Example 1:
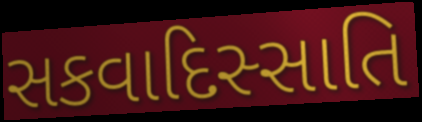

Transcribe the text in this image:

સકવાદિસ્સાતિ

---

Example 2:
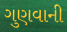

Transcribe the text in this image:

ગુણવાની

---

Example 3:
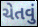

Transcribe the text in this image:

ચેતવું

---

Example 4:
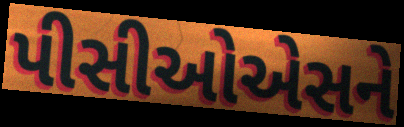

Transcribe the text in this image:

પીસીઓએસને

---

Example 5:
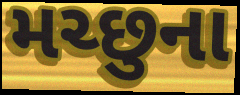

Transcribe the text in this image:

મચ્છુના